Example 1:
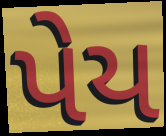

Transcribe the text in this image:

પેય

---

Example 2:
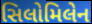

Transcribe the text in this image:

સિલોમિલેન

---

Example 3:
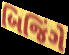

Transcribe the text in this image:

બિજિંગે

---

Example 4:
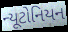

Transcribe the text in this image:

ન્યૂટોનિયન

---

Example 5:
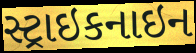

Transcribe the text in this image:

સ્ટ્રાઇકનાઇન